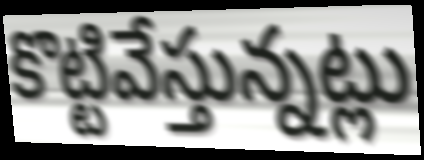
కొట్టివేస్తున్నట్లు